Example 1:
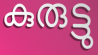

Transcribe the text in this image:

കുരുട്ടു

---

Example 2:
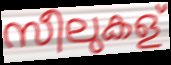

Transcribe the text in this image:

സീലുകള്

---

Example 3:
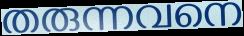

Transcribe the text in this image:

തരുന്നവനെ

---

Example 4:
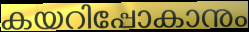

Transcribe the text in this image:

കയറിപ്പോകാനും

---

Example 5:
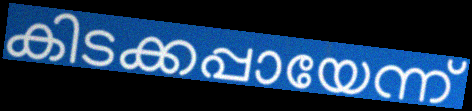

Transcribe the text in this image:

കിടക്കപ്പായേന്ന്